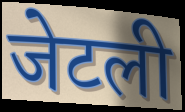
जेटली